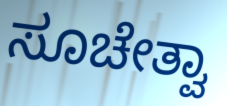
ಸೂಚೇತ್ವಾ